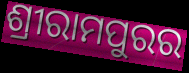
ଶ୍ରୀରାମପୁରର